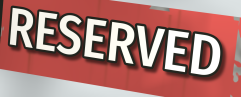
RESERVED